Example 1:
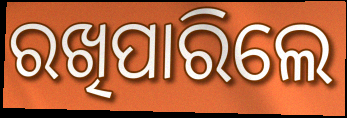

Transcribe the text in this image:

ରଖିପାରିଲେ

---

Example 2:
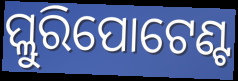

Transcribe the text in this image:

ପ୍ଲୁରିପୋଟେଣ୍ଟ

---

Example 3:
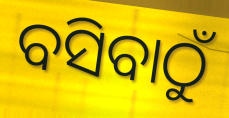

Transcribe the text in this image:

ବସିବାଠୁଁ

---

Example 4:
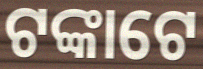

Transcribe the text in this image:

ଟଙ୍କାଟେ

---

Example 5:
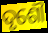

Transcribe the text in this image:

ଦୃଶୌ